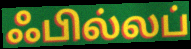
ஃபில்லப்